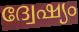
ദ്വേഷ്യം